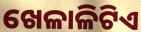
ଖେଳାଳିଟିଏ